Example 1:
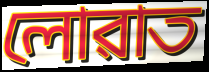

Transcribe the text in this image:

লোৱাত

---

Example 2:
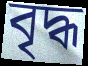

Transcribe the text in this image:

বৃদ্ধ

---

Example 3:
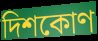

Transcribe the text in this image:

দিশকোণ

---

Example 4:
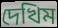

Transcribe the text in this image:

দেখিম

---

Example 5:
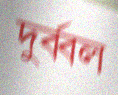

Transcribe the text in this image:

দুৰ্ব্বল